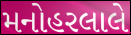
મનોહરલાલે